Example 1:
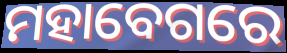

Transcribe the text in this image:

ମହାବେଗରେ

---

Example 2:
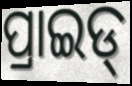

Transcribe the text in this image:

ପ୍ରାଇଡ୍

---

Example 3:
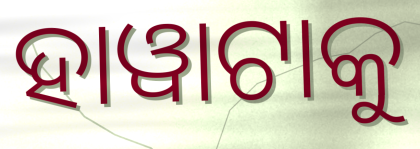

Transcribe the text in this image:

ହାୱାଟାକୁ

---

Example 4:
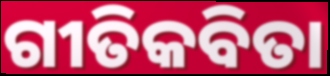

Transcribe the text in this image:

ଗୀତିକବିତା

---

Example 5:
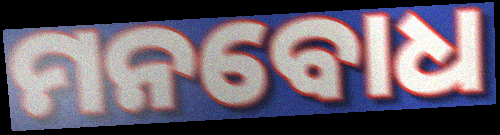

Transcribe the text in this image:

ମନବୋଧ